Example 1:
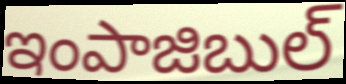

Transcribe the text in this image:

ఇంపాజిబుల్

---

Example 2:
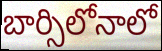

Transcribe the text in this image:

బార్సిలోనాలో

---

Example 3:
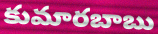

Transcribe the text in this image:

కుమారబాబు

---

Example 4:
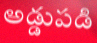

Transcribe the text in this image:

అడ్డుపడి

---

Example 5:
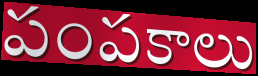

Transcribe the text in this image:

పంపకాలు